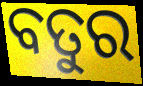
ବତୁର